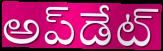
అప్‌డేట్